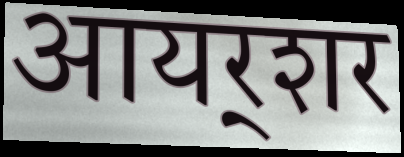
आयर्शर